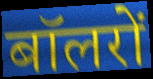
बॉलरों